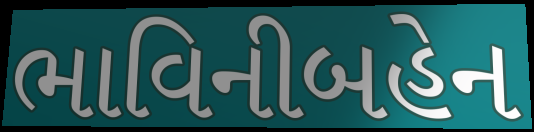
ભાવિનીબહેન